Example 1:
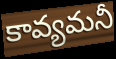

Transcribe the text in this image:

కావ్యమనీ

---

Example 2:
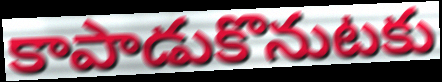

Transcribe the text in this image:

కాపాడుకొనుటకు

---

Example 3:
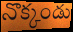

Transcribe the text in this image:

నొక్కండు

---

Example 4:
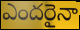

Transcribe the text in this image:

ఎందరైనా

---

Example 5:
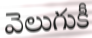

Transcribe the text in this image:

వెలుగుకీ